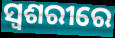
ସ୍ୱଶରୀରେ